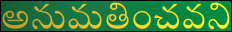
అనుమతించవని